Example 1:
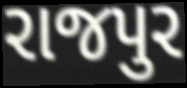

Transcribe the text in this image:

રાજપુર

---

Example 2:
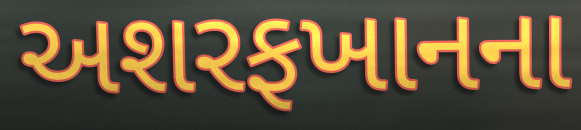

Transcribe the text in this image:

અશરફખાનના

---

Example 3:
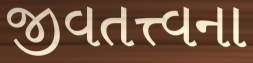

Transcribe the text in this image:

જીવતત્ત્વના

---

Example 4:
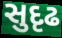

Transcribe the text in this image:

સુદૃઢ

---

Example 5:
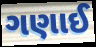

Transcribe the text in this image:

ગણાઈ